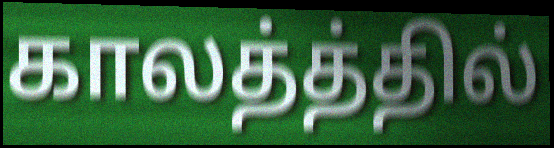
காலத்த்தில்